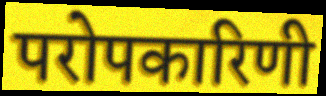
परोपकारिणी